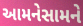
આમનેસામને